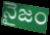
నైజం